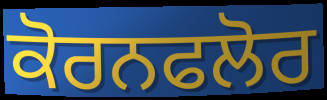
ਕੋਰਨਫਲੋਰ